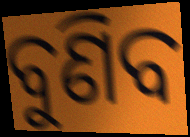
ବୁଣିବ